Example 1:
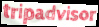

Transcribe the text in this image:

tripadvisor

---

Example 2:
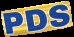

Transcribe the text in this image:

PDS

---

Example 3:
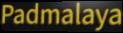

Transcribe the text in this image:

Padmalaya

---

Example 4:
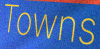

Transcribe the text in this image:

Towns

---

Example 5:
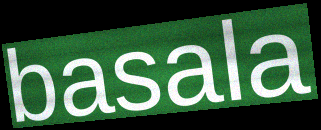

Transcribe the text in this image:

basala